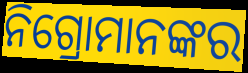
ନିଗ୍ରୋମାନଙ୍କର